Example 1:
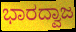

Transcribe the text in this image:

ಭಾರದ್ವಾಜ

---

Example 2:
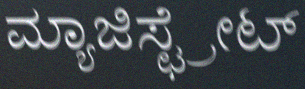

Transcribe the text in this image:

ಮ್ಯಾಜಿಸ್ಟ್ರೇಟ್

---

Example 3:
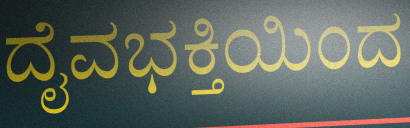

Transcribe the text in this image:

ದೈವಭಕ್ತಿಯಿಂದ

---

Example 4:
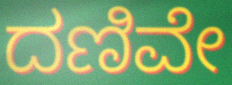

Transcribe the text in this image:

ದಣಿವೇ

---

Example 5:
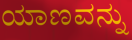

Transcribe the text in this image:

ಯಾಣವನ್ನು